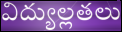
విద్యుల్లతలు